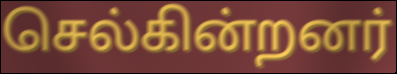
செல்கின்றனர்